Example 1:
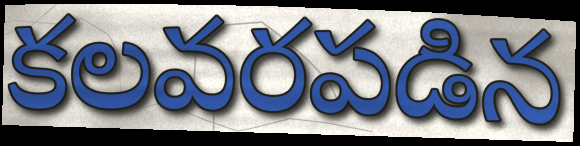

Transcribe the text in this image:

కలవరపడిన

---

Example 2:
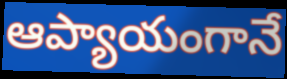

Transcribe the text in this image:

ఆప్యాయంగానే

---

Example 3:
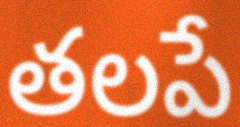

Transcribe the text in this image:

తలపే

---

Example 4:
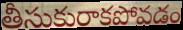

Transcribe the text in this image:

తీసుకురాకపోవడం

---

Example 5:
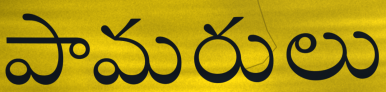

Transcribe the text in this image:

పామరులు